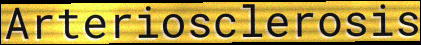
Arteriosclerosis